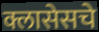
क्लासेसचे